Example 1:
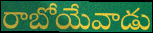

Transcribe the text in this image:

రాబోయేవాడు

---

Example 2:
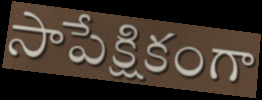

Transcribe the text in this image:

సాపేక్షికంగా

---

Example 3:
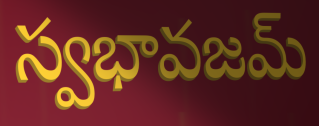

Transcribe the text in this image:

స్వభావజమ్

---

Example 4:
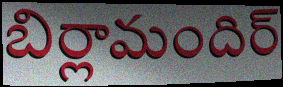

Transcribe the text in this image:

బిర్లామందిర్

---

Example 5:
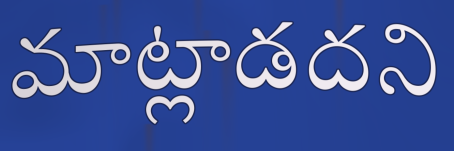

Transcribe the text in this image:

మాట్లాడదని